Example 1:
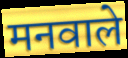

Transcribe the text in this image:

मनवाले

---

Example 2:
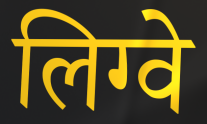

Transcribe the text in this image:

लिग्वे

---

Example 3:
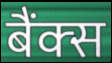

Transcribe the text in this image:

बैंक्‍स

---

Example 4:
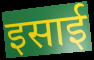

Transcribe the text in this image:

इसाई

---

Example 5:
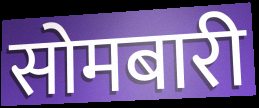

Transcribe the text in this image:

सोमबारी